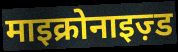
माइक्रोनाइज़्ड